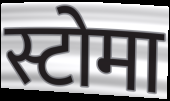
स्टोमा